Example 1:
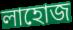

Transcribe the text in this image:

লাহোজ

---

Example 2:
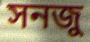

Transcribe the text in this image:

সনজু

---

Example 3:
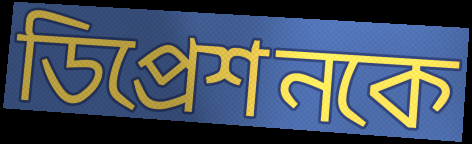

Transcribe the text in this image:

ডিপ্রেশনকে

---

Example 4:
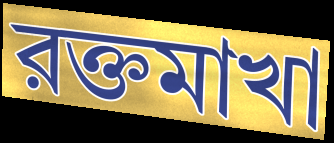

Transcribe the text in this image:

রক্তমাখা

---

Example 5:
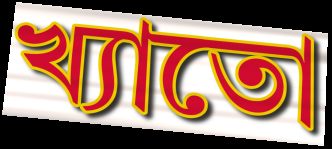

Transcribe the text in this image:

খ্যাতো